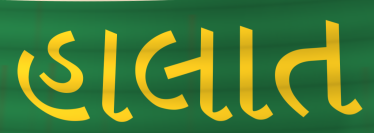
હાલાત